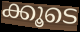
ക്കൂടെ